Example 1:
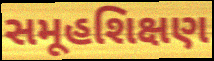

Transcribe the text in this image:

સમૂહશિક્ષણ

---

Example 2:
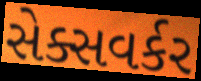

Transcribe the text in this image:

સેક્સવર્કર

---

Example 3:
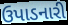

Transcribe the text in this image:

ઉપાડનારી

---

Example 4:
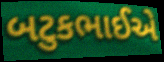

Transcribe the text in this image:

બટુકભાઈએ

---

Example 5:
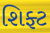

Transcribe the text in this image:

શિફ્ટ